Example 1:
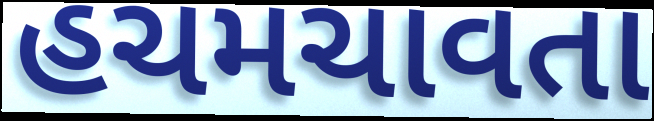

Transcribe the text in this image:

હચમચાવતા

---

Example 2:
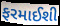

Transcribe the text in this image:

ફરમાઈશી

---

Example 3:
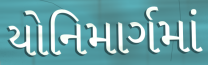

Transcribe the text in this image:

યોનિમાર્ગમાં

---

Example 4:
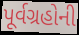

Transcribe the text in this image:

પૂર્વગ્રહોની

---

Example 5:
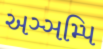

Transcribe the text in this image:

અઞ્ઞમ્પિ